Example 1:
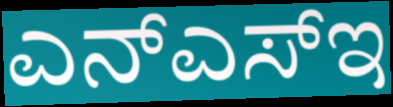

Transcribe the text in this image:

ಎನ್ಎಸ್ಇ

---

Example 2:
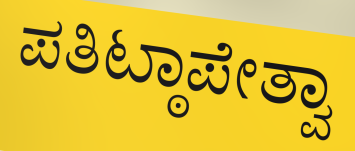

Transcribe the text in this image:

ಪತಿಟ್ಠಾಪೇತ್ವಾ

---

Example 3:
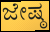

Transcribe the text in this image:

ಜೇಷ್ಠ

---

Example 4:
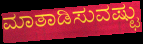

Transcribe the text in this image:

ಮಾತಾಡಿಸುವಷ್ಟು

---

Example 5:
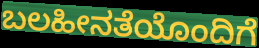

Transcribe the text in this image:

ಬಲಹೀನತೆಯೊಂದಿಗೆ